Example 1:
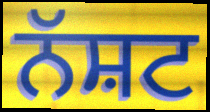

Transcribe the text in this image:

ਨੱਸ਼ਟ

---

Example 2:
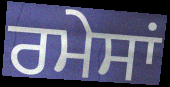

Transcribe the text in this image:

ਰਮੇਸਾਂ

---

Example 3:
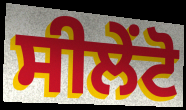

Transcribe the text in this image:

ਸੀਲੇਂਟੋ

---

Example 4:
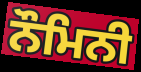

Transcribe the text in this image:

ਨੌਮਿਨੀ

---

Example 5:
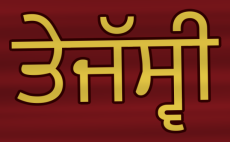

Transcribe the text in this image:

ਤੇਜੱਸ੍ਵੀ